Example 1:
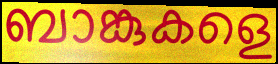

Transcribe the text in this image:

ബാങ്കുകളെ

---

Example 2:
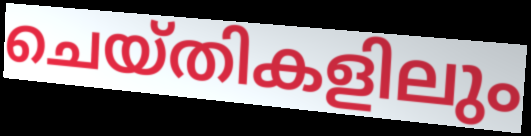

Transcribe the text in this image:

ചെയ്തികളിലും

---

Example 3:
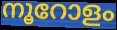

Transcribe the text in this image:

നൂറോളം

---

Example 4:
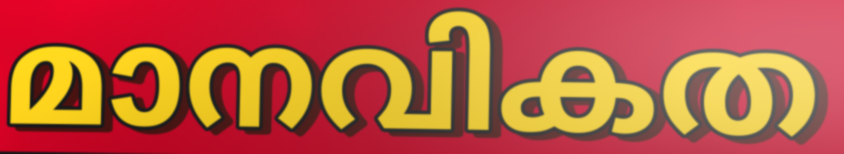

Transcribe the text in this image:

മാനവികത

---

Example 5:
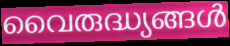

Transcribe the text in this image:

വൈരുദ്ധ്യങ്ങൾ